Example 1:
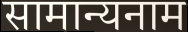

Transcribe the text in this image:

सामान्यनाम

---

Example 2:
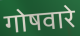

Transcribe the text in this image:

गोषवारे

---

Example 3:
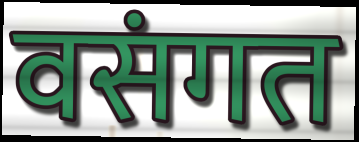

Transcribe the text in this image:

वसंगत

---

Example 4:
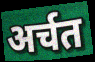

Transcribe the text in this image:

अर्चत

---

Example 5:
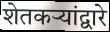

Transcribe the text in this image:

शेतकऱ्यांद्वारे